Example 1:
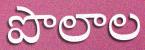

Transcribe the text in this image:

పొలాల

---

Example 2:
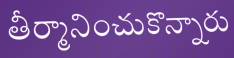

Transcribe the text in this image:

తీర్మానించుకొన్నారు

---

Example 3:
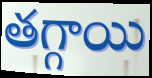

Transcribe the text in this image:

తగ్గాయి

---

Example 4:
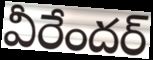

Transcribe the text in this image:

వీరేందర్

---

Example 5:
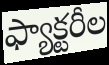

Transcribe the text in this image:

ఫ్యాక్టరీల